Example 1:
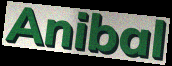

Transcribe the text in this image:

Anibal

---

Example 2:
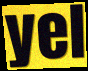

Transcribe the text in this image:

yel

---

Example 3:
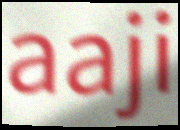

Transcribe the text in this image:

aaji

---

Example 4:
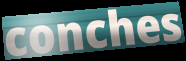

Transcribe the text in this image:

conches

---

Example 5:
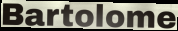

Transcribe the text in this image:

Bartolome